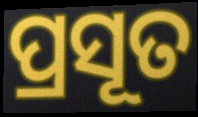
ପ୍ରସୂତ